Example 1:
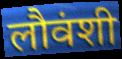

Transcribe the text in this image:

लौवंशी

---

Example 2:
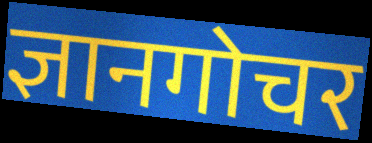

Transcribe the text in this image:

ज्ञानगोचर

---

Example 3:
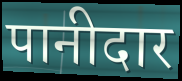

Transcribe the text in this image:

पानीदार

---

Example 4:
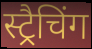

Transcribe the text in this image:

स्ट्रैचिंग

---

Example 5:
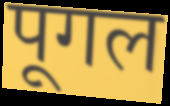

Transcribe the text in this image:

पूगल